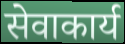
सेवाकार्य